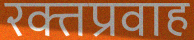
रक्तप्रवाह